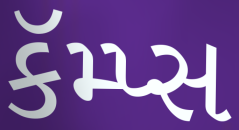
કૅમ્પ્સ